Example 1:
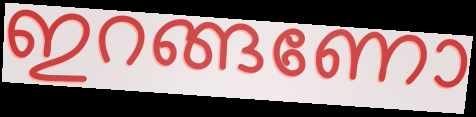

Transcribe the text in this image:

ഇറങ്ങണോ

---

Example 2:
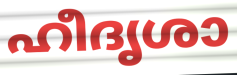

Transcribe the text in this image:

ഹീദൃശാ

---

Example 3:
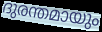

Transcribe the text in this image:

ദുരന്തമായും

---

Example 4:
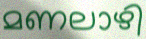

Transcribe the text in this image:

മണലാഴി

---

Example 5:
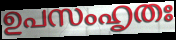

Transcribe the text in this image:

ഉപസംഹൃതഃ